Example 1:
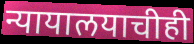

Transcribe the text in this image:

न्यायालयाचीही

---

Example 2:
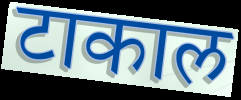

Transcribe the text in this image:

टाकाल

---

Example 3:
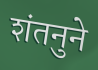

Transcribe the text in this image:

शंतनुने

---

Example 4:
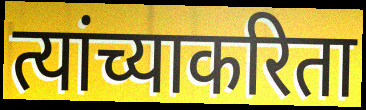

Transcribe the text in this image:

त्यांच्याकरिता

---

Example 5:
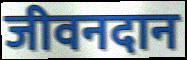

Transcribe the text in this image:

जीवनदान